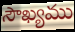
సౌఖ్యము